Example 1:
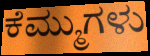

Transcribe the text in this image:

ಕೆಮ್ಮುಗಳು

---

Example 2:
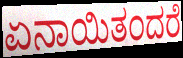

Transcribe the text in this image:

ಏನಾಯಿತಂದರೆ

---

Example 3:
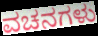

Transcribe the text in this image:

ವಚನಗಳು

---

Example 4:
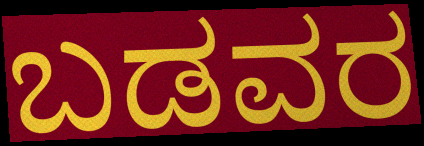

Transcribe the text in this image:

ಬಡವರ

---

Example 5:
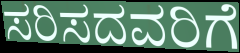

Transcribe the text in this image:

ಸರಿಸದವರಿಗೆ